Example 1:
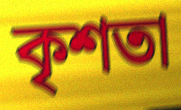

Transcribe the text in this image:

কৃশতা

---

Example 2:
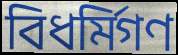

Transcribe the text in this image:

বিধর্মিগণ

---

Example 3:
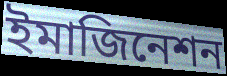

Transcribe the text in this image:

ইমাজিনেশন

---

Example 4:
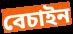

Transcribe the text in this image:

বেচাইন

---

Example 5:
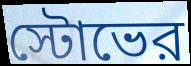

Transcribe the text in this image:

স্টোভের